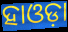
ହାଓଡ଼ା